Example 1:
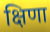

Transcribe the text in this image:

क्षिणा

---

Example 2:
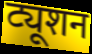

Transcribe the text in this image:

ट्यूशन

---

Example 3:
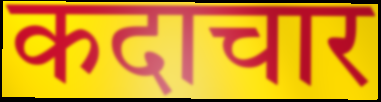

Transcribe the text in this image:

कदाचार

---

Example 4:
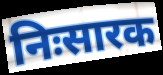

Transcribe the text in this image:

निःसारक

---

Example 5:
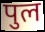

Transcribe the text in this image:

पुल